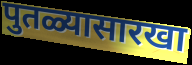
पुतळ्यासारखा